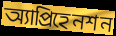
অ্যাপ্রিহেনশন